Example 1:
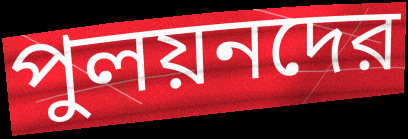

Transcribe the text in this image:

পুলয়নদের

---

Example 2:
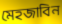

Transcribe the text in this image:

মেহজাবিন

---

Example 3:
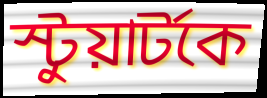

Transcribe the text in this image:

স্টুয়ার্টকে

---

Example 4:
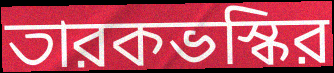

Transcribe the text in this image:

তারকভস্কির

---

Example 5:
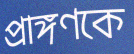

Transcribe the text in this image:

প্রাঙ্গণকে